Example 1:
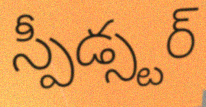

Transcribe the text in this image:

స్పీడ్స్టర్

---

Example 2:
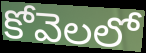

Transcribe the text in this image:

కోవెలలో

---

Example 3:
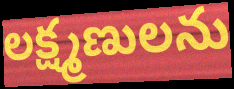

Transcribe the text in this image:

లక్ష్మణులను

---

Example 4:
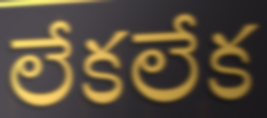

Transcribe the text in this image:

లేకలేక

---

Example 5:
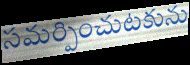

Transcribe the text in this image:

సమర్పించుటకును